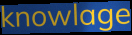
knowlage